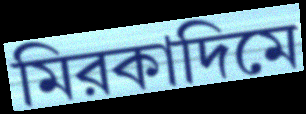
মিরকাদিমে